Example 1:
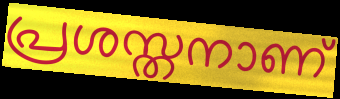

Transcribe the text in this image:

പ്രശസ്തനാണ്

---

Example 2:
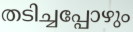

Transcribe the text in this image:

തടിച്ചപ്പോഴും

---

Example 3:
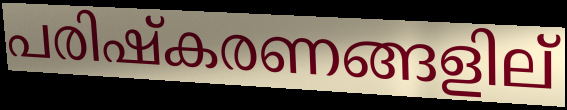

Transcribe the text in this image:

പരിഷ്കരണങ്ങളില്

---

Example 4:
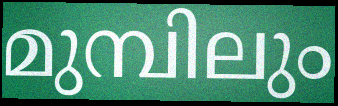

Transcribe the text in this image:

മുമ്പിലും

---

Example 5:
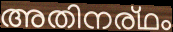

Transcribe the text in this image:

അതിനര്ഥം